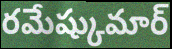
రమేష్కుమార్